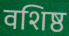
वशिष्ठ